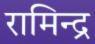
रामिन्द्र